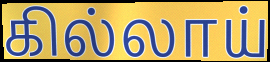
கில்லாய்